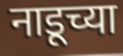
नाडूच्या